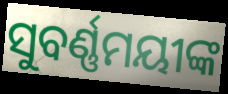
ସୁବର୍ଣ୍ଣମୟୀଙ୍କ